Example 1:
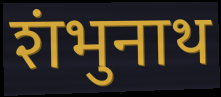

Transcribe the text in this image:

शंभुनाथ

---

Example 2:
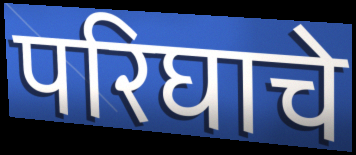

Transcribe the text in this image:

परिघाचे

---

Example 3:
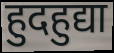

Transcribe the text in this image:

हुदहुद्या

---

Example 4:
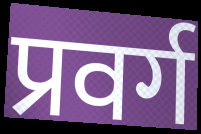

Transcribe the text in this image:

प्रवर्ग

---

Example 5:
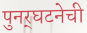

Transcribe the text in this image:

पुनर्घटनेची